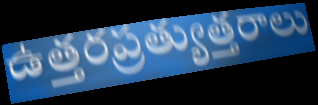
ఉత్తరప్రత్యుత్తరాలు